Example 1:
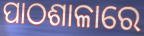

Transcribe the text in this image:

ପାଠଶାଳାରେ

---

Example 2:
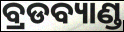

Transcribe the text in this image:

ବ୍ରଡବ୍ୟାଣ୍ଡ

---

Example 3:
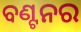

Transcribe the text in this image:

ବଣ୍ଟନର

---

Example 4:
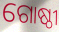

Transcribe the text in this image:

ଗୋଷ୍ଠୀ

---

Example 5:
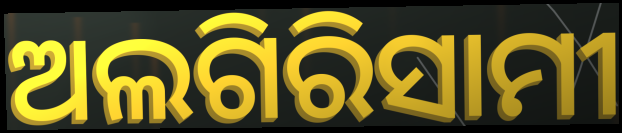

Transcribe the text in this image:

ଅଲଗିରିସାମୀ